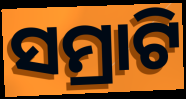
ସମ୍ରାଟି